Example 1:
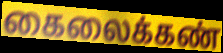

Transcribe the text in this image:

கைலைக்கண்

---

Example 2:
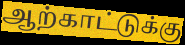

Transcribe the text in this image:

ஆற்காட்டுக்கு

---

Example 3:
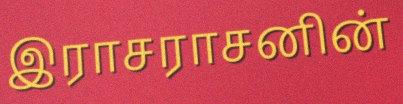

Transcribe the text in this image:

இராசராசனின்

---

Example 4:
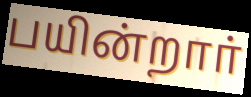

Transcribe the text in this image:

பயின்றார்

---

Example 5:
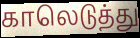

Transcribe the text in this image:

காலெடுத்து